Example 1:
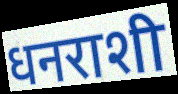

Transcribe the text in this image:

धनराशी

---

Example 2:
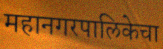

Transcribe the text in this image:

महानगरपालिकेचा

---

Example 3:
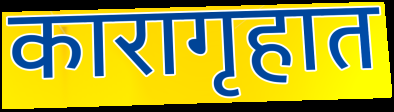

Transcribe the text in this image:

कारागृहात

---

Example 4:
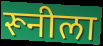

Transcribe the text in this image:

रूनीला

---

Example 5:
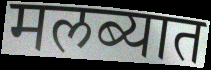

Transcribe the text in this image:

मलब्यात